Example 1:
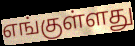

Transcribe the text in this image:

எங்குள்ளது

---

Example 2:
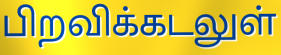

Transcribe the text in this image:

பிறவிக்கடலுள்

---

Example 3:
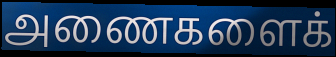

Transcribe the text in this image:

அணைகளைக்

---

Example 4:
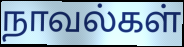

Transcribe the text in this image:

நாவல்கள்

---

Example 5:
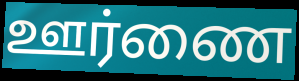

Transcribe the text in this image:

ஊர்ணை